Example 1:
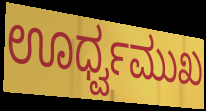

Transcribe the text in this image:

ಊರ್ಧ್ವಮುಖ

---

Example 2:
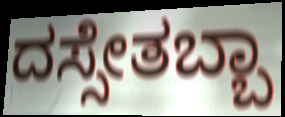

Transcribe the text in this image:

ದಸ್ಸೇತಬ್ಬಾ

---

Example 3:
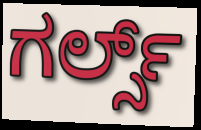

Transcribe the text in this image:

ಗರ್ಲ್ಸ್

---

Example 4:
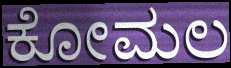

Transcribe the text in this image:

ಕೋಮಲ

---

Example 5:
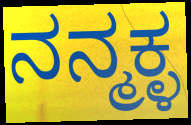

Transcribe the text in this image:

ನನ್ಮಕ್ಳ